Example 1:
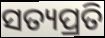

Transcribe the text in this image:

ସତ୍ୟପ୍ରତି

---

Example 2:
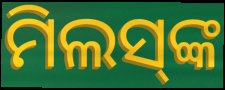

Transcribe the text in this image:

ମିଲସ୍‍ଙ୍କ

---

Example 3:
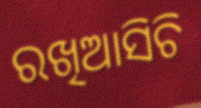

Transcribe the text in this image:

ରଖିଆସିଚି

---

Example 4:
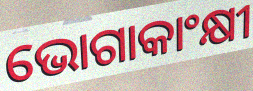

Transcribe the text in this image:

ଭୋଗାକାଂକ୍ଷୀ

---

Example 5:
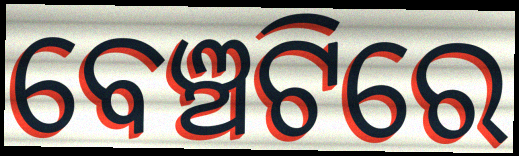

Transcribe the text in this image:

ବେଞ୍ଚଟିରେ